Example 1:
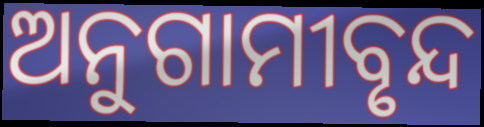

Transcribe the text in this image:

ଅନୁଗାମୀବୃନ୍ଦ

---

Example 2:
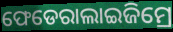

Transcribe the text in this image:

ଫେଡେରାଲାଇଜିମ୍ରେ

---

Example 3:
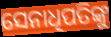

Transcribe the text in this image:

ସେନାଧିପତିଙ୍କୁ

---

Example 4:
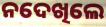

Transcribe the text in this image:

ନଦେଖିଲେ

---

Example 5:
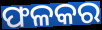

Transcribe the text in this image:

ଫଳକର